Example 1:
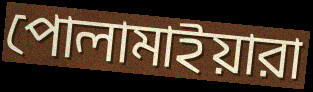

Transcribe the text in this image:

পোলামাইয়ারা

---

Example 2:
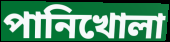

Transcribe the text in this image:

পানিখোলা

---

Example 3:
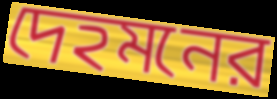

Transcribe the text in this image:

দেহমনের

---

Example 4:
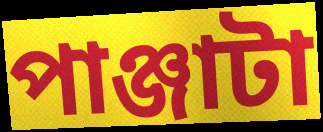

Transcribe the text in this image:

পাঞ্জাটা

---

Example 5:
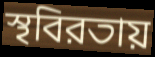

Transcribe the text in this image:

স্থবিরতায়